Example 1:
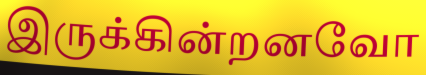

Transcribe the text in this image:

இருக்கின்றனவோ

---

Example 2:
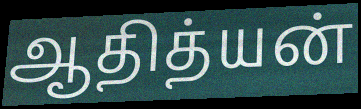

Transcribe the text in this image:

ஆதித்யன்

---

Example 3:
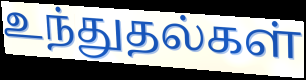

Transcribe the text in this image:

உந்துதல்கள்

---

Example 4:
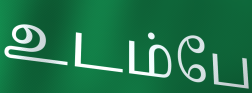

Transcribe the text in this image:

உடம்பே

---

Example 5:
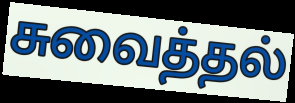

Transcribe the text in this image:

சுவைத்தல்